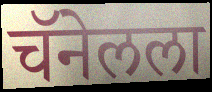
चॅनेलला